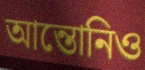
আন্তোনিও